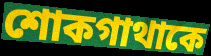
শোকগাথাকে